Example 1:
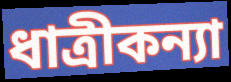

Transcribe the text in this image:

ধাত্রীকন্যা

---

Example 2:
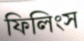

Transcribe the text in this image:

ফিলিংস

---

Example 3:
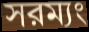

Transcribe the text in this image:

সরম্যং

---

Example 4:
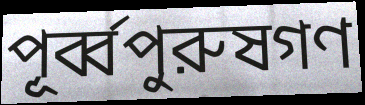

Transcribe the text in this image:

পূর্ব্বপুরুষগণ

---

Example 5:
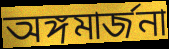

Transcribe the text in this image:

অঙ্গমার্জনা